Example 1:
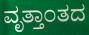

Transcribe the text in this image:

ವೃತ್ತಾಂತದ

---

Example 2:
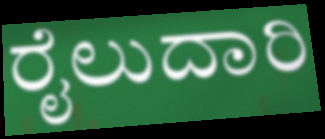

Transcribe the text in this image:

ರೈಲುದಾರಿ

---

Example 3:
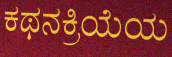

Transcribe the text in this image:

ಕಥನಕ್ರಿಯೆಯ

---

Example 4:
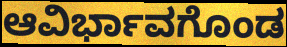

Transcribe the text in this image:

ಆವಿರ್ಭಾವಗೊಂಡ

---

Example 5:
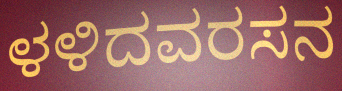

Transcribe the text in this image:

ಳಳಿದವರಸನ